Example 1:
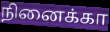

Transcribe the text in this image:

நினைக்கா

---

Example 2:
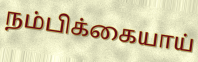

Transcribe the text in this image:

நம்பிக்கையாய்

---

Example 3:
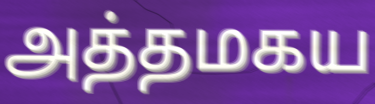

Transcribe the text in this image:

அத்தமகய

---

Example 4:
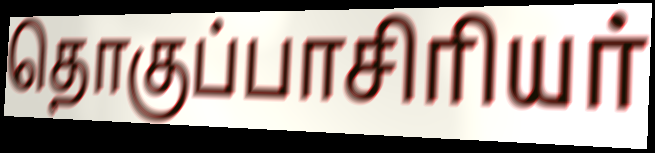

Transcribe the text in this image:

தொகுப்பாசிரியர்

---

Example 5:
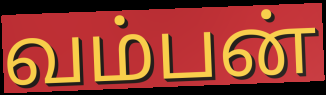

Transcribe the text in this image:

வம்பன்